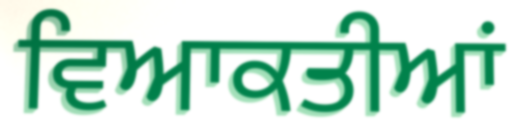
ਵਿਆਕਤੀਆਂ